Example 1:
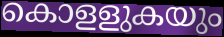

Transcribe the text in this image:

കൊളളുകയും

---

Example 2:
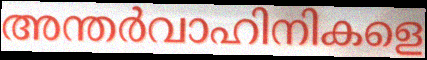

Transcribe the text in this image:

അന്തർവാഹിനികളെ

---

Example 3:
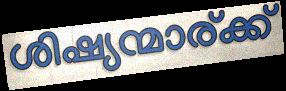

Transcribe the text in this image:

ശിഷ്യന്മാര്ക്ക്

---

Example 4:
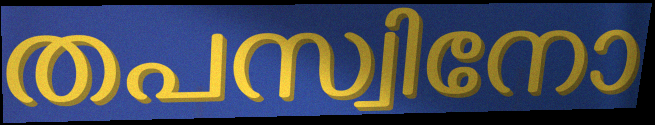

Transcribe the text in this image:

തപസ്വിനോ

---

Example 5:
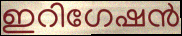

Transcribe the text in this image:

ഇറിഗേഷൻ